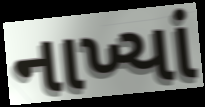
નાખ્યાં